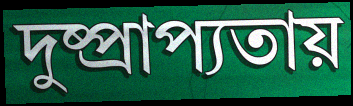
দুষ্প্রাপ্যতায়